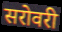
सरोवरी